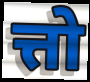
त्तो